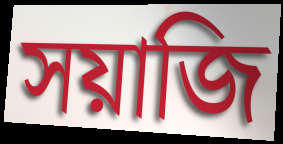
সয়াজি